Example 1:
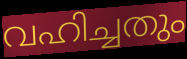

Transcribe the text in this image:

വഹിച്ചതും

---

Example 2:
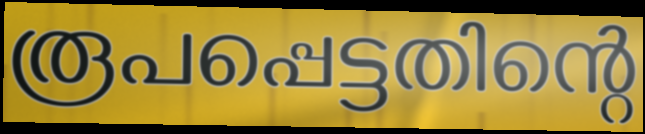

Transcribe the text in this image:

രൂപപ്പെട്ടതിന്റെ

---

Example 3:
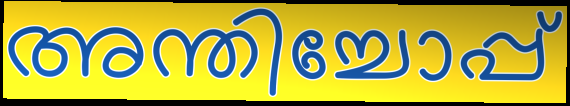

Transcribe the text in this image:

അന്തിച്ചോപ്പ്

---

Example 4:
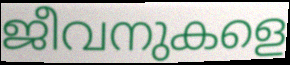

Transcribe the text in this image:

ജീവനുകളെ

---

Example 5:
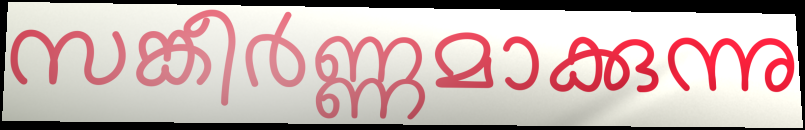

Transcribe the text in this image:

സങ്കീർണ്ണമാക്കുന്നു